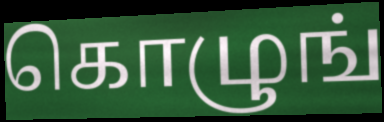
கொழுங்